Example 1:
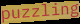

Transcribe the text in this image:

puzzling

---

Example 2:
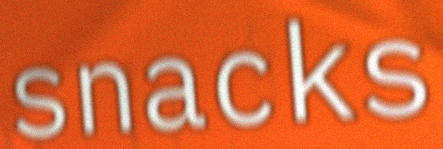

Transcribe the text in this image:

snacks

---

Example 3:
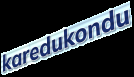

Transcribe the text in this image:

karedukondu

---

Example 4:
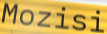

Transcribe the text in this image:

Mozisi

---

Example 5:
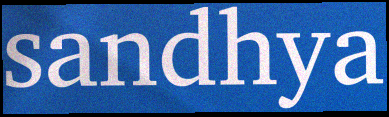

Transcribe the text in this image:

sandhya